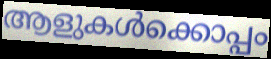
ആളുകൾക്കൊപ്പം